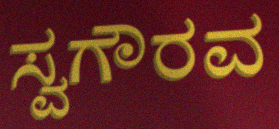
ಸ್ವಗೌರವ